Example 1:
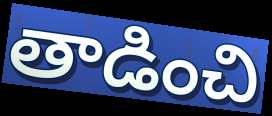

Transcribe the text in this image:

తాడించి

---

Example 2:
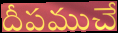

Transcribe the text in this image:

దీపముచే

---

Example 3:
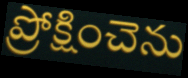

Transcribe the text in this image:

ప్రోక్షించెను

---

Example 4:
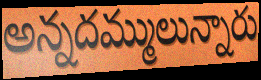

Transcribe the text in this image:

అన్నదమ్ములున్నారు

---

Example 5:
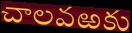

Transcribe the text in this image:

చాలవఱకు